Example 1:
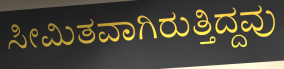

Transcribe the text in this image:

ಸೀಮಿತವಾಗಿರುತ್ತಿದ್ದವು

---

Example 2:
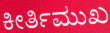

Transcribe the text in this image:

ಕೀರ್ತಿಮುಖ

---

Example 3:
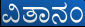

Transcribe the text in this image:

ವಿತಾನಂ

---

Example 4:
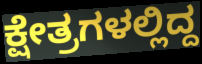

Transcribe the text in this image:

ಕ್ಷೇತ್ರಗಳಲ್ಲಿದ್ದ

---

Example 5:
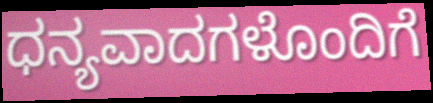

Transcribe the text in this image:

ಧನ್ಯವಾದಗಳೊಂದಿಗೆ